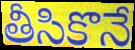
తీసికొనే